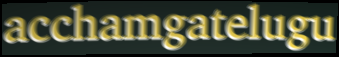
acchamgatelugu